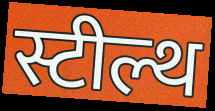
स्टील्थ